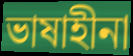
ভাষাহীনা